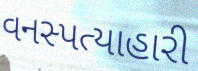
વનસ્પત્યાહારી